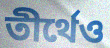
তীর্থেও